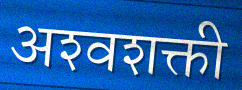
अश्वशक्ती